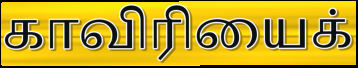
காவிரியைக்